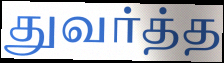
துவர்த்த